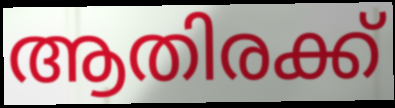
ആതിരക്ക്